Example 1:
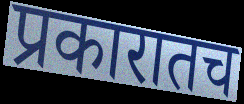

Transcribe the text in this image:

प्रकारातच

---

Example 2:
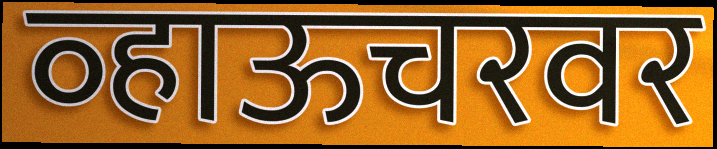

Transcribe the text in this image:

व्हाऊचरवर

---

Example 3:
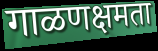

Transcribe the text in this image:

गाळणक्षमता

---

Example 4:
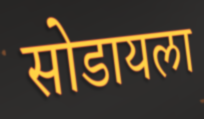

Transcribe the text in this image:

सोडायला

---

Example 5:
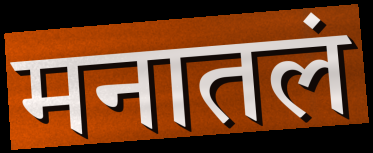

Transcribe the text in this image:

मनातलं